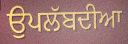
ਉਪਲੱਬਦੀਆ